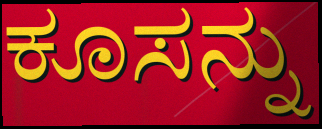
ಕೂಸನ್ನು